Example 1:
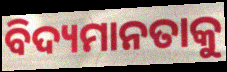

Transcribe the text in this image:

ବିଦ୍ୟମାନତାକୁ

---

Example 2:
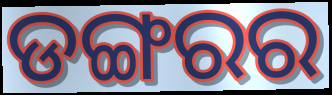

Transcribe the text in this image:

ଡଙ୍ଗରର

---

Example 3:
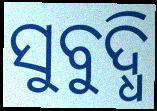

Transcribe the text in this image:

ସୁବୁଦ୍ଧି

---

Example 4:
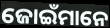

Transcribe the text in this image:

ଜୋଇଁମାନେ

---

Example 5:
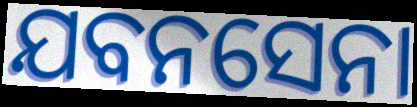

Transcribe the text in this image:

ଯବନସେନା